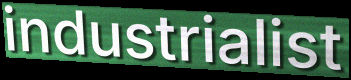
industrialist